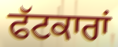
ਫੱਟਕਾਰਾਂ